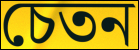
চেতন